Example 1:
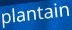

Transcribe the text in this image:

plantain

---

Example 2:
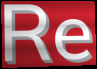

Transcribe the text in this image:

Re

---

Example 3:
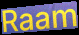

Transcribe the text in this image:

Raam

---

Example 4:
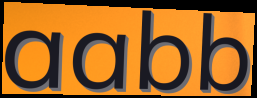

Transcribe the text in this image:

aabb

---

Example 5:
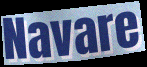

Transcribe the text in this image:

Navare